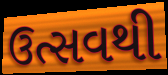
ઉત્સવથી